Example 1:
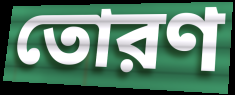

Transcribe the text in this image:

তোরণ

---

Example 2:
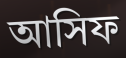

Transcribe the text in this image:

আসিফ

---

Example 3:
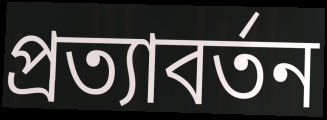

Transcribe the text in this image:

প্রত্যাবর্তন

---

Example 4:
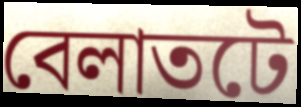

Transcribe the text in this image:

বেলাতটে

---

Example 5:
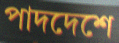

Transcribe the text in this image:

পাদদেশে